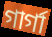
গার্গা